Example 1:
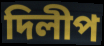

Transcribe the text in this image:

দিলীপ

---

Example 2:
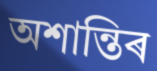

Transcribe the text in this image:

অশান্তিৰ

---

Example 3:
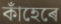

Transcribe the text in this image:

কাঁহেৰে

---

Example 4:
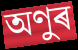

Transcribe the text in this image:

অণুৰ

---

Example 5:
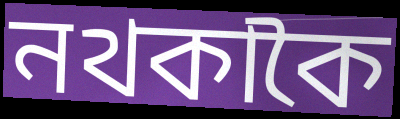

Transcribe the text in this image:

নথকাকৈ